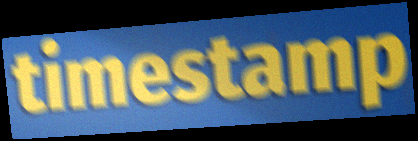
timestamp